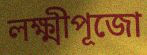
লক্ষ্মীপূজো